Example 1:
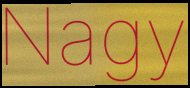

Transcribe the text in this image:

Nagy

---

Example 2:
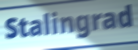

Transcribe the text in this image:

Stalingrad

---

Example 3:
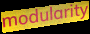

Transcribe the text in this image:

modularity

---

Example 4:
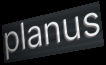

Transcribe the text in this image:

planus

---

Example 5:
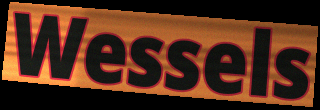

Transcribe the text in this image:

Wessels